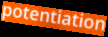
potentiation